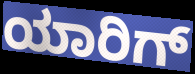
ಯಾರಿಗ್